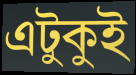
এটুকুই